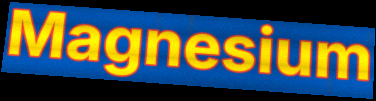
Magnesium